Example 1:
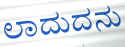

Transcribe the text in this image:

ಲಾದುದನು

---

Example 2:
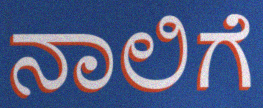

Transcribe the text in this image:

ನಾಲಿಗೆ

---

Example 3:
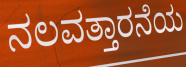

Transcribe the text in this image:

ನಲವತ್ತಾರನೆಯ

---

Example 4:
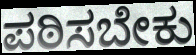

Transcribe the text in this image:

ಪಠಿಸಬೇಕು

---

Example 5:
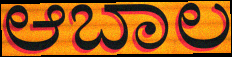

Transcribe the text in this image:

ಆಬಾಲ